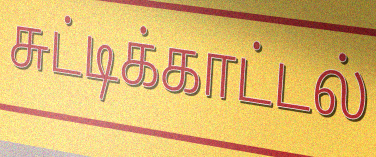
சுட்டிக்காட்டல்